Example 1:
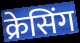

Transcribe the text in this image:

क्रेसिंग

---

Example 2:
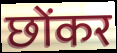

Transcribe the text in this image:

छोंकर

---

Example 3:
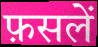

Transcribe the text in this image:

फ़सलें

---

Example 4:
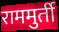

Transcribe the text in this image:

राममुर्ती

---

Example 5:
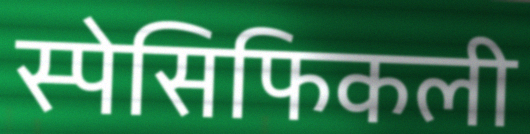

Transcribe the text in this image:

स्पेसिफिकली